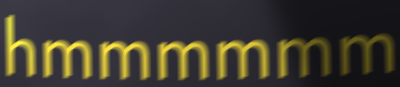
hmmmmmm